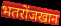
भतरोंजखान